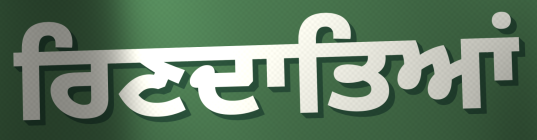
ਰਿਣਦਾਤਿਆਂ